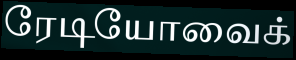
ரேடியோவைக்